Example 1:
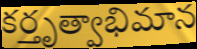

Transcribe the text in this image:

కర్తృత్వాభిమాన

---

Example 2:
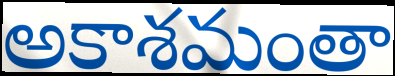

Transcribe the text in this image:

అకాశమంతా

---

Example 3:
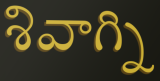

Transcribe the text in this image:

శివాగ్ని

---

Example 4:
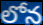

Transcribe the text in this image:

లోన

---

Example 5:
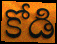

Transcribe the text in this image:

కోడి